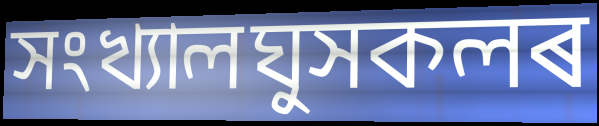
সংখ্যালঘুসকলৰ